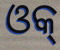
ଓକ୍